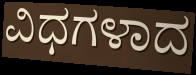
ವಿಧಗಳಾದ